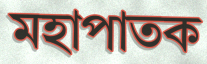
মহাপাতক